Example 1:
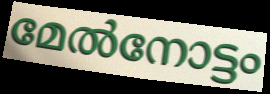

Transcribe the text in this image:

മേൽനോട്ടം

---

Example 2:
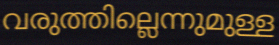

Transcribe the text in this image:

വരുത്തില്ലെന്നുമുള്ള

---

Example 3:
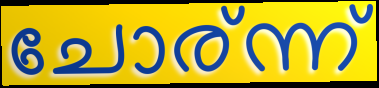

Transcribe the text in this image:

ചോര്ന്ന്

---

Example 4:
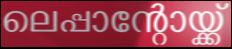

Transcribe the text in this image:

ലെപ്പാന്റോയ്ക്ക്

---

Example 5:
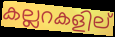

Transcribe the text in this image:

കല്ലറകളില്